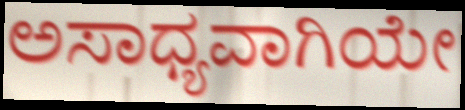
ಅಸಾಧ್ಯವಾಗಿಯೇ